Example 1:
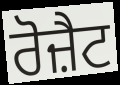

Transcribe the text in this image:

ਰੋਜ਼ੈਟ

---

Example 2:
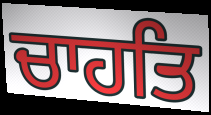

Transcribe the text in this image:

ਚਾਹਤਿ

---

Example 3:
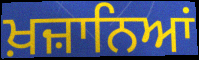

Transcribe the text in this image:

ਖ਼ਜ਼ਾਨਿਆਂ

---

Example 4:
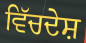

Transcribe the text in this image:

ਵਿੱਚਦੇਸ਼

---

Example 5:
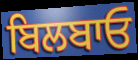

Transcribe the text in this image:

ਬਿਲਬਾਓ